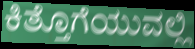
ಕಿತ್ತೊಗೆಯುವಲ್ಲಿ